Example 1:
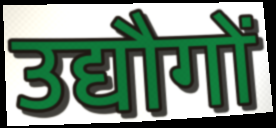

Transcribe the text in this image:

उद्यौगों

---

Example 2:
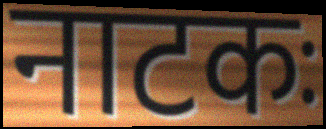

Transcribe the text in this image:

नाटकः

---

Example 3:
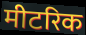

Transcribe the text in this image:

मीटरिक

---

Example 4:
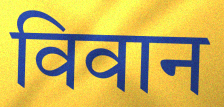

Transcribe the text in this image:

विवान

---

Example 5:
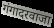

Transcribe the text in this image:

गंगादरवाजा